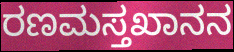
ರಣಮಸ್ತಖಾನನ